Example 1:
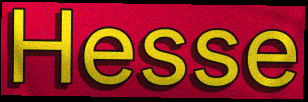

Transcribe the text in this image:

Hesse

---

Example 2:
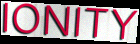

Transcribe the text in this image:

IONITY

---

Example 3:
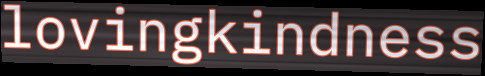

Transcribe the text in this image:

lovingkindness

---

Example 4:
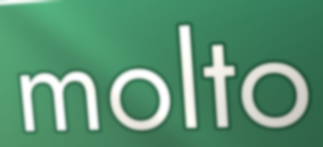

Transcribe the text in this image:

molto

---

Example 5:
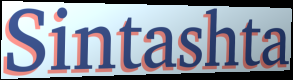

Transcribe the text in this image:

Sintashta